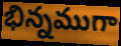
భిన్నముగా